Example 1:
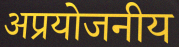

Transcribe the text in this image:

अप्रयोजनीय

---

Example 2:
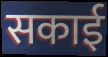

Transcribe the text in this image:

सकाई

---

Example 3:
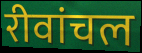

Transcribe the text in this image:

रीवांचल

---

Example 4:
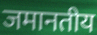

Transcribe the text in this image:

जमानतीय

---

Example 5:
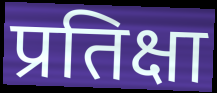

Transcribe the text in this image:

प्रतिक्षा